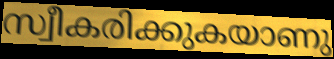
സ്വീകരിക്കുകയാണു